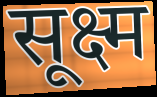
सूक्ष्‍म